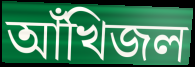
আঁখিজল